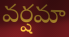
వర్షమా